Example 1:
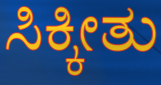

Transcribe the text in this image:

ಸಿಕ್ಕೀತು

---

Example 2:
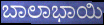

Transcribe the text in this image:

ಬಾಲಾಭಾಯಿ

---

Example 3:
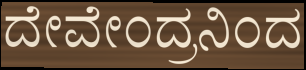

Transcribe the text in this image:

ದೇವೇಂದ್ರನಿಂದ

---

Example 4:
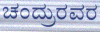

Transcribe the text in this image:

ಚಂದ್ರುರವರ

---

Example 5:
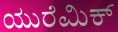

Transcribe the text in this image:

ಯುರೆಮಿಕ್